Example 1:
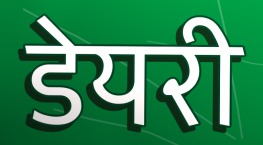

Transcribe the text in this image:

डेयरी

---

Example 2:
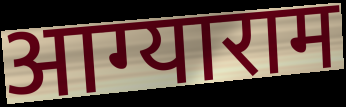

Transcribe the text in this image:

आग्याराम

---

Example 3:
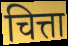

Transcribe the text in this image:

चित्ता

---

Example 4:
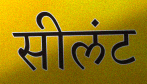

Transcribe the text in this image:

सीलंट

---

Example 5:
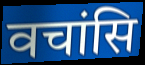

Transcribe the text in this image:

वचांसि